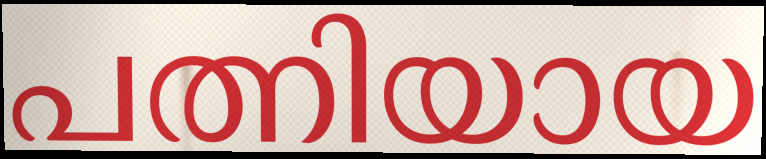
പത്നിയായ